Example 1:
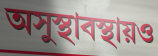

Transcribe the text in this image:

অসুস্থাবস্থায়ও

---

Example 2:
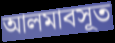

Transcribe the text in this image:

আলমাবসূত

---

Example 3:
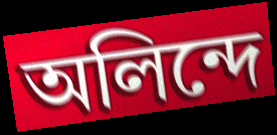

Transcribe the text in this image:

অলিন্দে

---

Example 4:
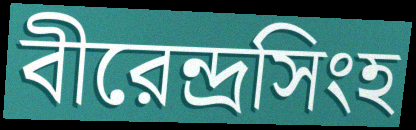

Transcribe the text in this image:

বীরেন্দ্রসিংহ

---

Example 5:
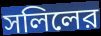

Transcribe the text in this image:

সলিলের